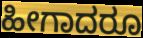
ಹೀಗಾದರೂ